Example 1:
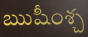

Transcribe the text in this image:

ఋషీంశ్చ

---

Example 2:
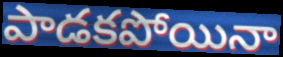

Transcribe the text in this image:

పాడకపోయినా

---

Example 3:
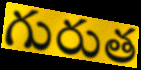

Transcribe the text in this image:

గురుత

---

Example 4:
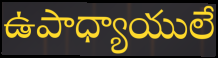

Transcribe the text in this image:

ఉపాధ్యాయులే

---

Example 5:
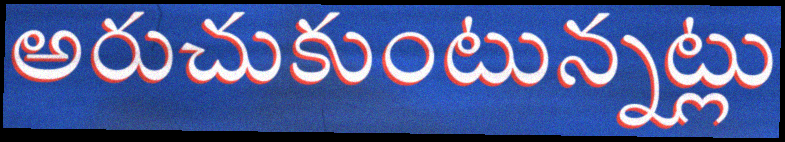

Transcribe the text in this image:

అరుచుకుంటున్నట్లు